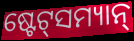
ଷ୍ଟେଟ୍‌ସମ୍ୟାନ୍